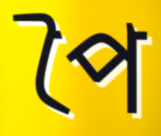
পৈ